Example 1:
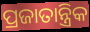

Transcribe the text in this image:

ପ୍ରଜାତାନ୍ତ୍ରିକ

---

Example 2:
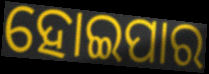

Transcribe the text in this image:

ହୋଇପାର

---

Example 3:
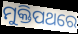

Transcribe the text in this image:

ମୁକ୍ତିପଥରେ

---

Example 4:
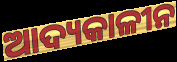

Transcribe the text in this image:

ଆଦ୍ୟକାଳୀନ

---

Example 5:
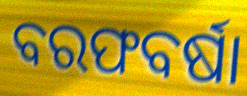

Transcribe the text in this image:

ବରଫବର୍ଷା